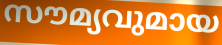
സൗമ്യവുമായ